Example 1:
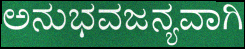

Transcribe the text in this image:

ಅನುಭವಜನ್ಯವಾಗಿ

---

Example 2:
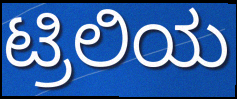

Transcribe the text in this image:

ಟ್ರಿಲಿಯ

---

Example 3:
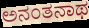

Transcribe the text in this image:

ಅನಂತನಾಥ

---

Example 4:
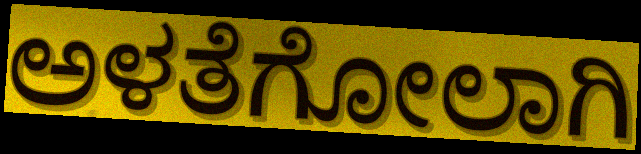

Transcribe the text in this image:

ಅಳತೆಗೋಲಾಗಿ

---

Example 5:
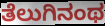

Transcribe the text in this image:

ತೆಲುಗಿನಂಥ